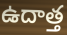
ఉదాత్త